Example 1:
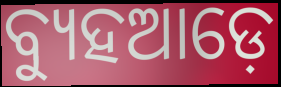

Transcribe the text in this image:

ବ୍ୟୁହଆଡ଼େ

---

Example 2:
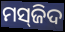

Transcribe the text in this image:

ମସ୍‌ଜିଦ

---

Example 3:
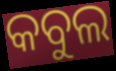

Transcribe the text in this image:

କବୁଲ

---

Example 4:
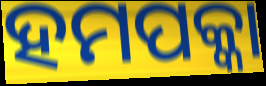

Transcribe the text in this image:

ହମପକ୍କା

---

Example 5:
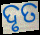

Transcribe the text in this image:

ଦୃତ